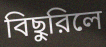
বিছুরিলে